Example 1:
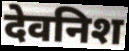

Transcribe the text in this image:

देवनिश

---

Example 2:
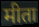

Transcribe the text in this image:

मीता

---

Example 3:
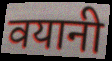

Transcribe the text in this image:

वयानी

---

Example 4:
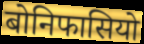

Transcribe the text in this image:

बोनिफासियो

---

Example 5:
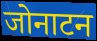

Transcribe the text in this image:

जोनाटन